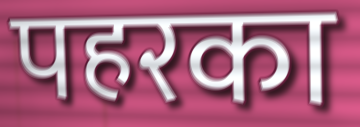
पहरका